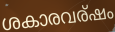
ശകാരവര്ഷം